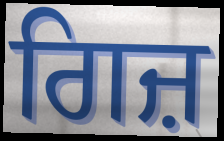
ਗਿਜ਼